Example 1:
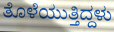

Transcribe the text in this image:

ತೊಳೆಯುತ್ತಿದ್ದಳು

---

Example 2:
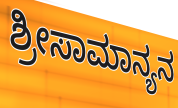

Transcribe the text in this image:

ಶ್ರೀಸಾಮಾನ್ಯನ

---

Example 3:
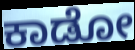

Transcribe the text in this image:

ಕಾಡೋ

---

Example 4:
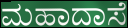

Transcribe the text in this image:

ಮಹಾದಾಸೆ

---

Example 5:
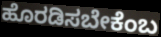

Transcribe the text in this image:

ಹೊರಡಿಸಬೇಕೆಂಬ